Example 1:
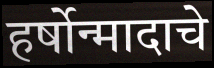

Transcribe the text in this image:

हर्षोन्मादाचे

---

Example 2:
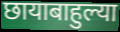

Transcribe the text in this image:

छायाबाहुल्या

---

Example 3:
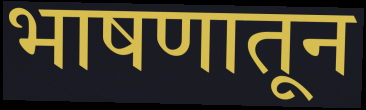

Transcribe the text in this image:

भाषणातून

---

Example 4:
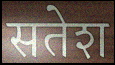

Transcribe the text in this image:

सतेश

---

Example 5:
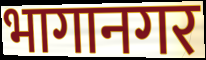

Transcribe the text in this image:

भागानगर